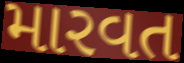
મારવત